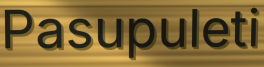
Pasupuleti